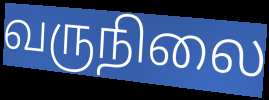
வருநிலை